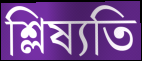
শ্লিষ্যতি